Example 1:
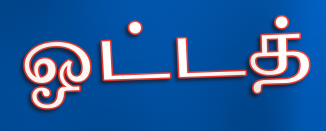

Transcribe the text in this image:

ஓட்டத்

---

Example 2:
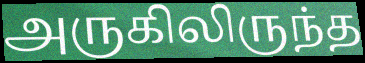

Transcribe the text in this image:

அருகிலிருந்த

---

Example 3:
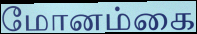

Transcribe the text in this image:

மோனம்கை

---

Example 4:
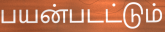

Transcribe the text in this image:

பயன்படட்டும்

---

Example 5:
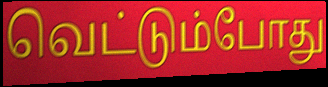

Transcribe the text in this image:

வெட்டும்போது